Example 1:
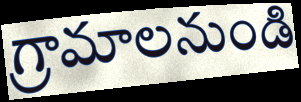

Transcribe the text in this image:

గ్రామాలనుండి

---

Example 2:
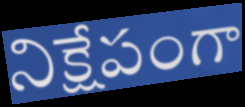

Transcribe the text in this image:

నిక్షేపంగా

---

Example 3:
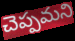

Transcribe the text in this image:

చెప్పమని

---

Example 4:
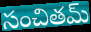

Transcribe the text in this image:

సంచితమ్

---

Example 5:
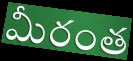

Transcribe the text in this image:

మీరంత